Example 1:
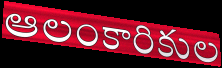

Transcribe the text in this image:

ఆలంకారికుల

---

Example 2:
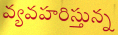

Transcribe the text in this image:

వ్యవహరిస్తున్న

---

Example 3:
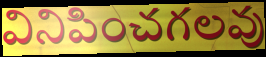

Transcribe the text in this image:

వినిపించగలవు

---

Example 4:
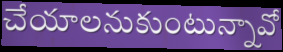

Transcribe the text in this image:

చేయాలనుకుంటున్నావో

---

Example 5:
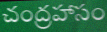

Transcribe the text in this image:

చంద్రహాసం